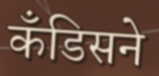
कँडिसने